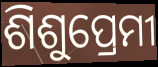
ଶିଶୁପ୍ରେମୀ